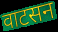
वाटसन